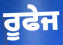
ਰੂਫੇਜ